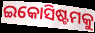
ଇକୋସିଷ୍ଟମକୁ